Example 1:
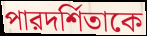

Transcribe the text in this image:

পারদর্শিতাকে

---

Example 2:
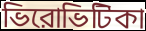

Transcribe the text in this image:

ভিরোভিটিকা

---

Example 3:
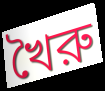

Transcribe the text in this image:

খৈরু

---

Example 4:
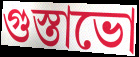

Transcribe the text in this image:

গুস্তাভো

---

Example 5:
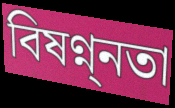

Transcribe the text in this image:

বিষণ্ন্নতা